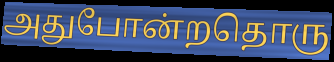
அதுபோன்றதொரு